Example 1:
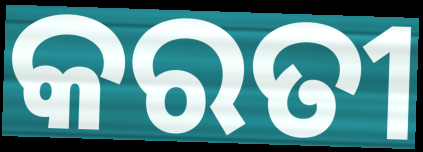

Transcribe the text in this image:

କରତୀ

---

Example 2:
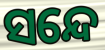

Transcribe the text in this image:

ସନ୍ଦେ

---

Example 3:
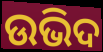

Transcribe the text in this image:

ଉଭିଦ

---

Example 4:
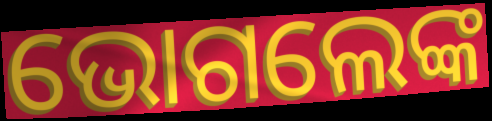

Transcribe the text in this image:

ଭୋଗଲେଙ୍କ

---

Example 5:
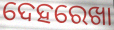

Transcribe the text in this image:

ଦେହରେଖା